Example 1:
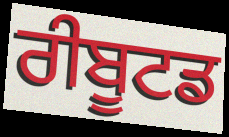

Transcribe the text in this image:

ਰੀਬੂਟਡ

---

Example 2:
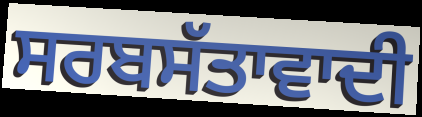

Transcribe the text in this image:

ਸਰਬਸੱਤਾਵਾਦੀ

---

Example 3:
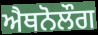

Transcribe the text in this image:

ਐਥਨੋਲੌਗ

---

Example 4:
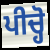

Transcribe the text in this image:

ਪੀਚ੍ਹੋ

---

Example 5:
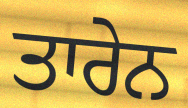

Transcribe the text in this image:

ਤਾਰੇਨ